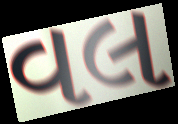
વલ